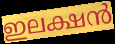
ഇലക്ഷൻ